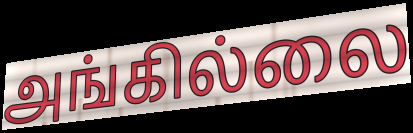
அங்கில்லை